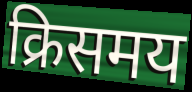
क्रिसमय